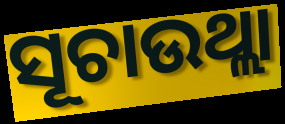
ସୂଚାଉଥ୍ଲା